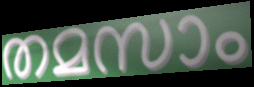
തമസാം